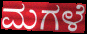
ಮಗಳೆ